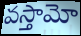
వస్తామో